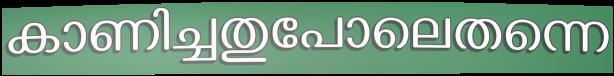
കാണിച്ചതുപോലെതന്നെ